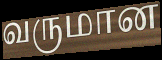
வருமான